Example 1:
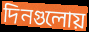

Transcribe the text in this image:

দিনগুলোয়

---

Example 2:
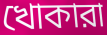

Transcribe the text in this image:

খোকারা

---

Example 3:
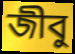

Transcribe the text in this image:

জীবু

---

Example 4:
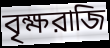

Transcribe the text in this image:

বৃক্ষরাজি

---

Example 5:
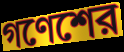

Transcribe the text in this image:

গণেশের